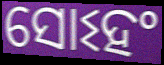
ସୋଽହଂ